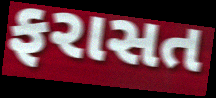
ફરાસત